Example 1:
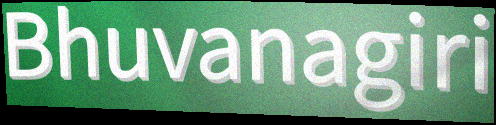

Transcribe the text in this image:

Bhuvanagiri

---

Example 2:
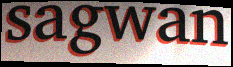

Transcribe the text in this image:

sagwan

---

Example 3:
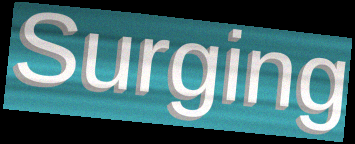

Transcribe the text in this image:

Surging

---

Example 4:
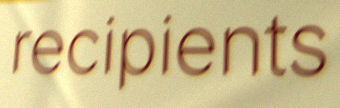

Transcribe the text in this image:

recipients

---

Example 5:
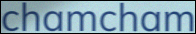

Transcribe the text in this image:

chamcham